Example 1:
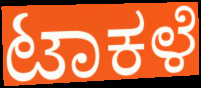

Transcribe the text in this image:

ಟಾಕಳೆ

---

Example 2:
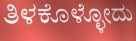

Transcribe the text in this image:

ತಿಳಕೊಳ್ಳೋದು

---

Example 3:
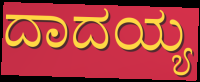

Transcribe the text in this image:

ದಾದಯ್ಯ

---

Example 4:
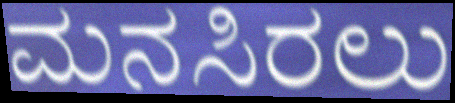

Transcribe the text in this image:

ಮನಸಿರಲು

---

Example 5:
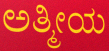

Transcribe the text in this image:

ಅತ್ಮೀಯ